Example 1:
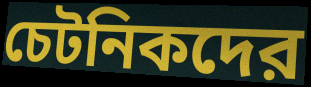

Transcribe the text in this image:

চেটনিকদের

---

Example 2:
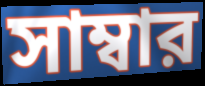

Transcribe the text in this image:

সাম্বার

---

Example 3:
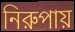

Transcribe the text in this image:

নিরুপায়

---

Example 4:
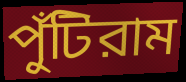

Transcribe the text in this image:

পুঁটিরাম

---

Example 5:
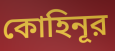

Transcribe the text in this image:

কোহিনূর